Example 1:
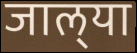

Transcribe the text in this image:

जाल्या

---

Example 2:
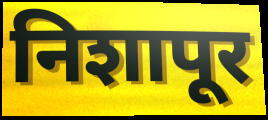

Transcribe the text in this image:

निशापूर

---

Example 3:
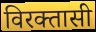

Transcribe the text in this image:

विरक्तासी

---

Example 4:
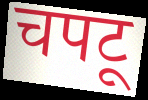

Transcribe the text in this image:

चपटू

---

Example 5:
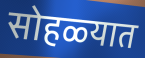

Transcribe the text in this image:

सोहळ्यात